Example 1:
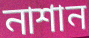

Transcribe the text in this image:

নাশান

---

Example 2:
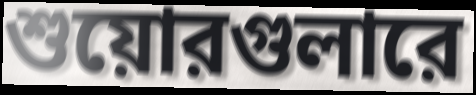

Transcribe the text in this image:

শুয়োরগুলারে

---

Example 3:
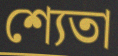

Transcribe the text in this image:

শ্যেতা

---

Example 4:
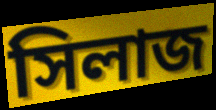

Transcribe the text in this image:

সিলাজ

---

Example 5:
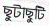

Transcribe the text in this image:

ছুটাছুটি